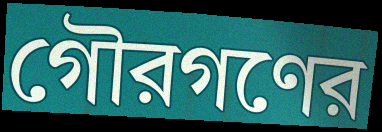
গৌরগণের